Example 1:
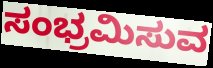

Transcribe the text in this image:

ಸಂಭ್ರಮಿಸುವ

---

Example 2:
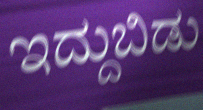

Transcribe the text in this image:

ಇದ್ದುಬಿಡು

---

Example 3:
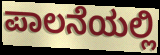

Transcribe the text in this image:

ಪಾಲನೆಯಲ್ಲಿ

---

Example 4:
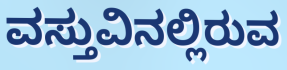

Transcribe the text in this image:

ವಸ್ತುವಿನಲ್ಲಿರುವ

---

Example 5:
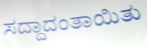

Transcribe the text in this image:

ಸದ್ದಾದಂತಾಯಿತು